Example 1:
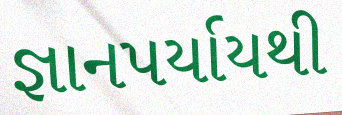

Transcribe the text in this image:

જ્ઞાનપર્યાયથી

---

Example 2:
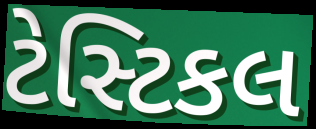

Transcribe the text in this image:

ટેસ્ટિકલ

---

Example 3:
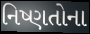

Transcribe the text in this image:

નિષ્ણતોના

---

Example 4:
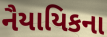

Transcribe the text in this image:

નૈયાયિકના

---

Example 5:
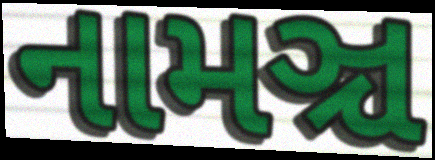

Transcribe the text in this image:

નામઞ્ચ